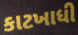
કાટખાધી